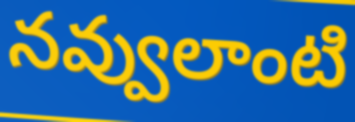
నవ్వులాంటి